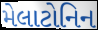
મેલાટોનિન